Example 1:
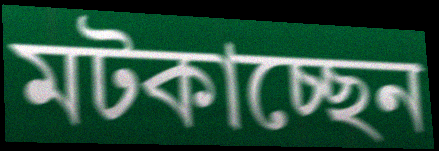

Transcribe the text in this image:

মটকাচ্ছেন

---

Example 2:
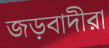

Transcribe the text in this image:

জড়বাদীরা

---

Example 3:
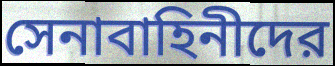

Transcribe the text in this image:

সেনাবাহিনীদের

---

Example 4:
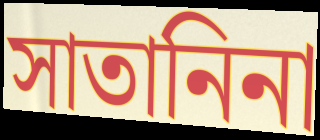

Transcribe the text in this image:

সাতানিনা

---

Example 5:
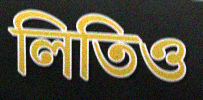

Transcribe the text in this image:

লিতিও